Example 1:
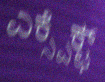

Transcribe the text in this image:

ಎಕ್ಸ್ಪೆಕ್ಟ್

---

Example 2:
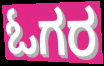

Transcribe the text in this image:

ಓಗರ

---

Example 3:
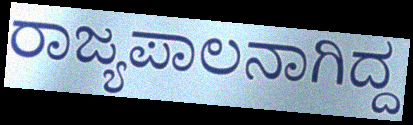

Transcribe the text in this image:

ರಾಜ್ಯಪಾಲನಾಗಿದ್ದ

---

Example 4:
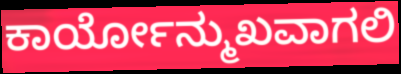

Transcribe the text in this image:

ಕಾರ್ಯೋನ್ಮುಖವಾಗಲಿ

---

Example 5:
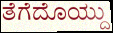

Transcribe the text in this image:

ತೆಗೆದೊಯ್ದು